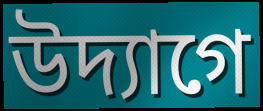
উদ্যাগে